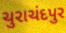
ચુરાચંદપુર